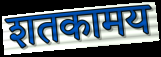
शतकामय